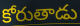
కోరుతాడు